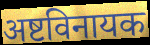
अष्टविनायक